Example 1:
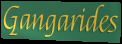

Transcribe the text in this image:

Gangarides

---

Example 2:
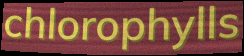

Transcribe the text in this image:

chlorophylls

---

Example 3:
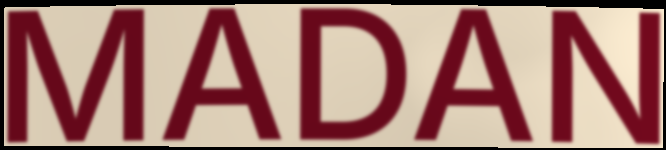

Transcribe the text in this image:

MADAN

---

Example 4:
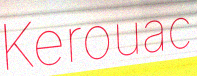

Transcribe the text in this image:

Kerouac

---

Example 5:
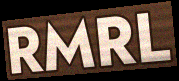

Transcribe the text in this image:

RMRL